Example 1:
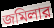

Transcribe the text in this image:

জমিলার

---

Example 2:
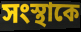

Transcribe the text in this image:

সংস্থাকে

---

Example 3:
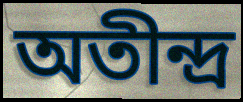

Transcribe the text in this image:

অতীন্দ্র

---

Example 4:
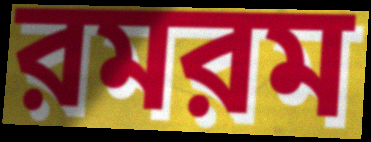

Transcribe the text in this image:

রমরম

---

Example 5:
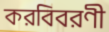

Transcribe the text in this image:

করবিবরণী